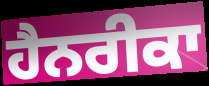
ਹੈਨਰੀਕਾ